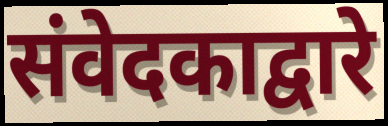
संवेदकाद्वारे